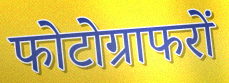
फोटोग्राफरों